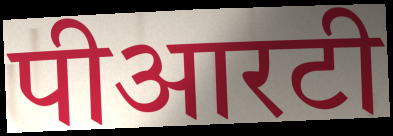
पीआरटी